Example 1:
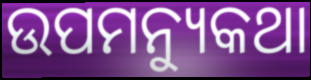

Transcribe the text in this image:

ଉପମନ୍ୟୁକଥା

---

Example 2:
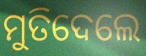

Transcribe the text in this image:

ମୁତିଦେଲେ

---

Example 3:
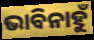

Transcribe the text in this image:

ଭାବିନାହୁଁ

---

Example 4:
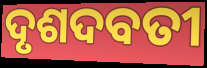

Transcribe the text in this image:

ଦୃଶଦବତୀ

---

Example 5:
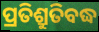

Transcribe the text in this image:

ପ୍ରତିଶ୍ରୁତିବଦ୍ଧ